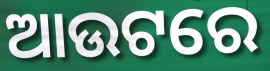
ଆଉଟରେ